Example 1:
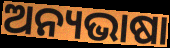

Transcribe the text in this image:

ଅନ୍ୟଭାଷା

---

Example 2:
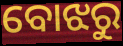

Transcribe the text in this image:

ବୋଝରୁ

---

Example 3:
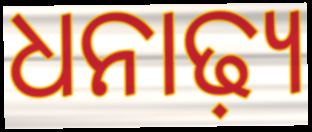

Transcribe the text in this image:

ଧନାଢ଼୍ୟ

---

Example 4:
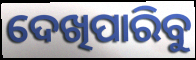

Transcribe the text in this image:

ଦେଖିପାରିବୁ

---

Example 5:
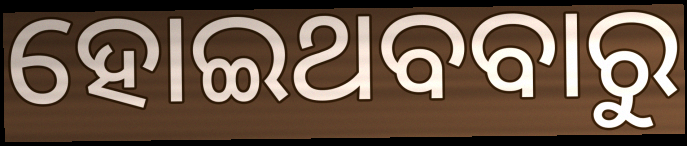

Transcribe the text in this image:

ହୋଇଥବବାରୁ